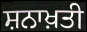
ਸ਼ਨਾਖ਼ਤੀ